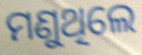
ମଣୁଥିଲେ